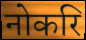
नोकरि